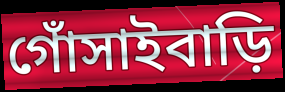
গোঁসাইবাড়ি